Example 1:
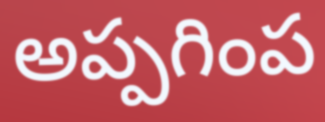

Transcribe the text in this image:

అప్పగింప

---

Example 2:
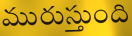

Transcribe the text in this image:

మురుస్తుంది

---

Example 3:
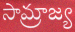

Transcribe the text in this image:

సామ్రాజ్య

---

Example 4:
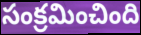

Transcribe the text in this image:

సంక్రమించింది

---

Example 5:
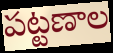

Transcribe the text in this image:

పట్టణాల